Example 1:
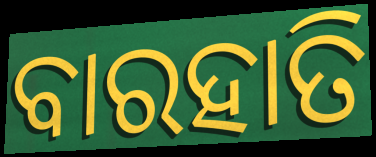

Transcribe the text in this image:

ବାରହାତି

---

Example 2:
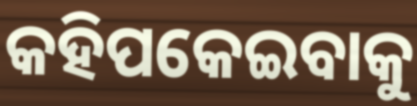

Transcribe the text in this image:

କହିପକେଇବାକୁ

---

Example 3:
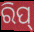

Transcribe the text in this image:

ରିପ୍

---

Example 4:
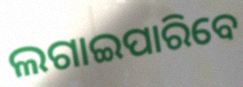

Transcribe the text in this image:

ଲଗାଇପାରିବେ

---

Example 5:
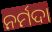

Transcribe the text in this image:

ନର୍ମଦା